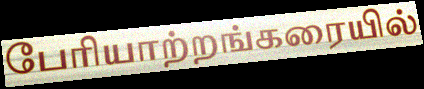
பேரியாற்றங்கரையில்